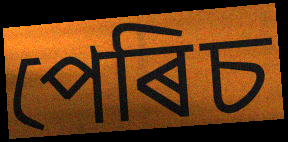
পেৰিচ